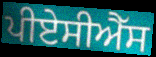
ਪੀਏਸੀਐੱਸ